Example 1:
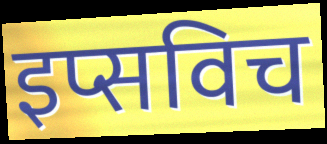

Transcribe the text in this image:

इप्सविच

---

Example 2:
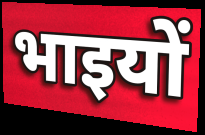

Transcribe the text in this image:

भाइयों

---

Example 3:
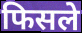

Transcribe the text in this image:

फिसले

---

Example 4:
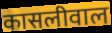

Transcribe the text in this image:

कासलीवाल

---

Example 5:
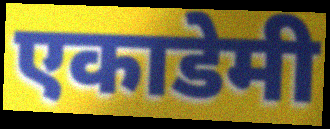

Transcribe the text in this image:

एकाडेमी